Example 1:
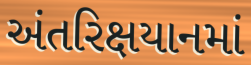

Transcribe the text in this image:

અંતરિક્ષયાનમાં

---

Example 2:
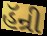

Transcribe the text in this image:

હૅન્રી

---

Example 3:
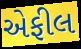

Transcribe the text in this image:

એફીલ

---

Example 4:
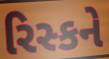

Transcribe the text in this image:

રિસ્કને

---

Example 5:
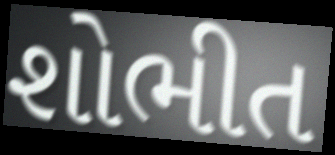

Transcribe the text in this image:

શોભીત